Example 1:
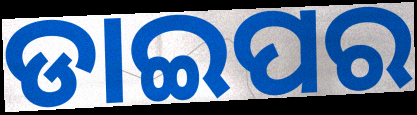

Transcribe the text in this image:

ଡାଇପର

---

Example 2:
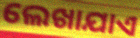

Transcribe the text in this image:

ଲେଖାଯାଏ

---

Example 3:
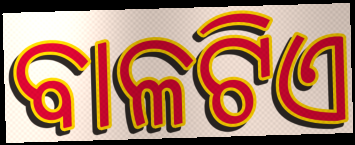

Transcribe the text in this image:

ବାଳଟିଏ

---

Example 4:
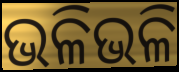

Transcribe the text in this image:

ଭଳିଭଳି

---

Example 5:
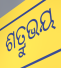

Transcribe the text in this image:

ଶତ୍ରୁଭୟ